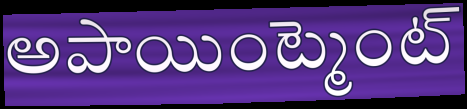
అపాయింట్మెంట్